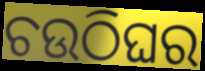
ଚଉଠିଘର